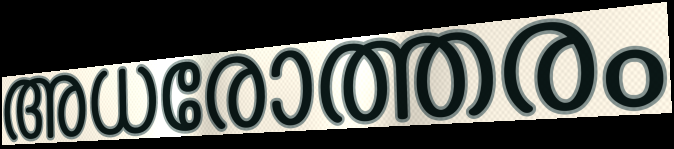
അധരോത്തരം